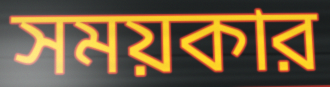
সময়কার